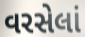
વરસેલાં